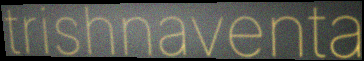
trishnaventa